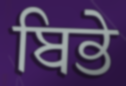
ਬਿਭੇ